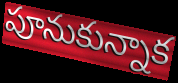
పూనుకున్నాక